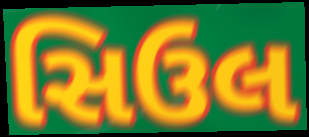
સિઉલ